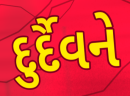
દુર્દૈવને